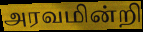
அரவமின்றி